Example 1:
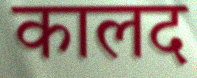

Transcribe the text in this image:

कालद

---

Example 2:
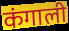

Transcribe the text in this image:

कंगाली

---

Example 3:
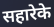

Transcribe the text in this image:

सहारेके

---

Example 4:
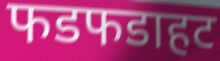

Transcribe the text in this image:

फडफडाहट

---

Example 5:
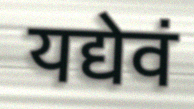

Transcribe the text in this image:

यद्येवं